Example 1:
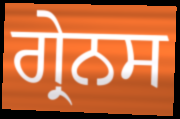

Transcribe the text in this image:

ਗ੍ਰੇਨਸ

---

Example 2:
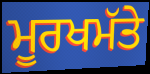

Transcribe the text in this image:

ਮੂਰਖਮੱਤੇ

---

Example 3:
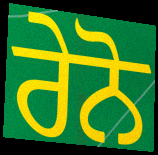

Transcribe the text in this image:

ਰੇਨੋ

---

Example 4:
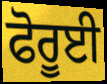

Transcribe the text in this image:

ਫੋਰੂਈ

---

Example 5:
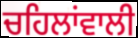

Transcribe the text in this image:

ਚਹਿਲਾਂਵਾਲੀ